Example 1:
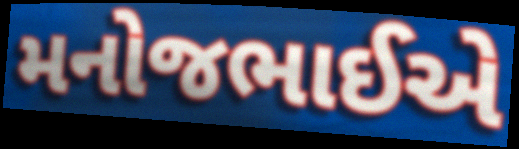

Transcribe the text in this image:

મનોજભાઈએ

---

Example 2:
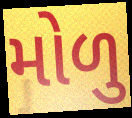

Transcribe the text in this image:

મોળુ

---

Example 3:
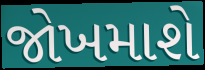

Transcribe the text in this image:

જોખમાશે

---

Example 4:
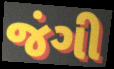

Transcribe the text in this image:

જંગી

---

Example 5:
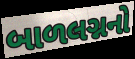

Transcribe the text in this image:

બાળલગ્નનો